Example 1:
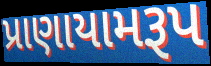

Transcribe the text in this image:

પ્રાણાયામરૂપ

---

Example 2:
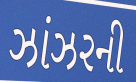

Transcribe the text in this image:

ઝાંઝરની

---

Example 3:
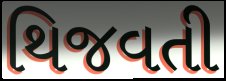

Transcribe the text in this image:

થિજવતી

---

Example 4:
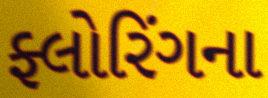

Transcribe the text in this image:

ફ્લોરિંગના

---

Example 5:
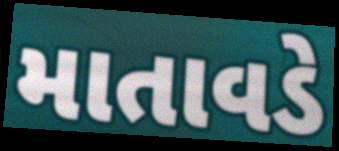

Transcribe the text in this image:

માતાવડે